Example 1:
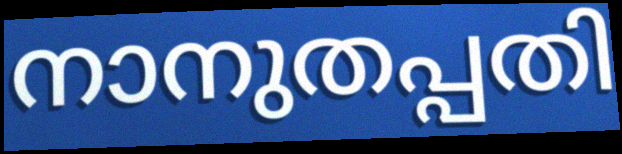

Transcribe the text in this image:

നാനുതപ്പതി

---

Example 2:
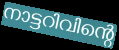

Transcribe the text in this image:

നാട്ടറിവിന്റെ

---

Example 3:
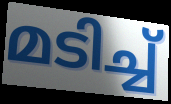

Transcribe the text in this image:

മടിച്ച്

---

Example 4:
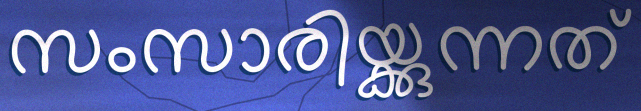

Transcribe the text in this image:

സംസാരിയ്ക്കുന്നത്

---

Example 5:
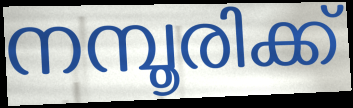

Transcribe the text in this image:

നമ്പൂരിക്ക്